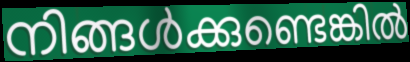
നിങ്ങൾക്കുണ്ടെങ്കിൽ